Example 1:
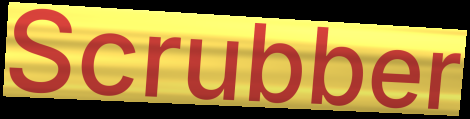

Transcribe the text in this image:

Scrubber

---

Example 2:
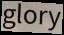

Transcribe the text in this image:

glory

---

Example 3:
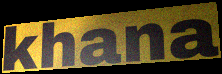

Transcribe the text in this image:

khana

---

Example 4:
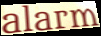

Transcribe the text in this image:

alarm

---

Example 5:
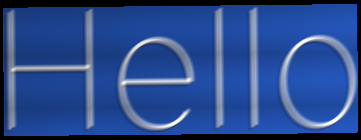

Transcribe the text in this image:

Hello